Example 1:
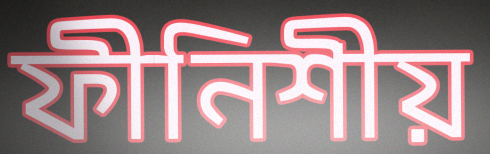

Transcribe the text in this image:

ফীনিশীয়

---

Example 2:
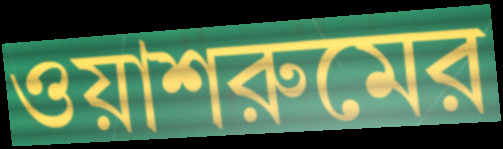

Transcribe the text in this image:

ওয়াশরুমের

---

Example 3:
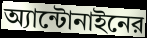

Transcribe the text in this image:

অ্যান্টোনাইনের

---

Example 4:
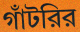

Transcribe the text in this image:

গাঁটরির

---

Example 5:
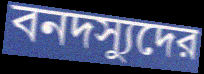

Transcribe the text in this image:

বনদস্যুদের